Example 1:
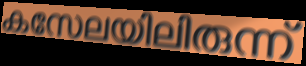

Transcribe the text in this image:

കസേലയിലിരുന്ന്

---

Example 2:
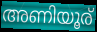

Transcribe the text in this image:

അണിയൂര്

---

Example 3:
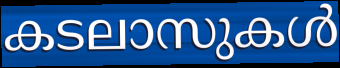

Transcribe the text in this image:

കടലാസുകൾ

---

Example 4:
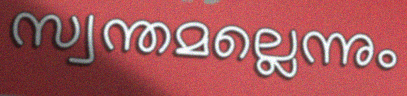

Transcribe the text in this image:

സ്വന്തമല്ലെന്നും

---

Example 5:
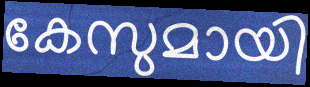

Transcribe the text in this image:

കേസുമായി